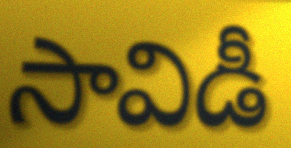
సావిడీ